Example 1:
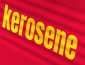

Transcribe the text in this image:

kerosene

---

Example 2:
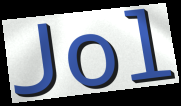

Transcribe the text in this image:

Jol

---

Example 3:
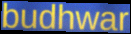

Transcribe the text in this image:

budhwar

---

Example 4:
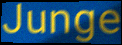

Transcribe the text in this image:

Junge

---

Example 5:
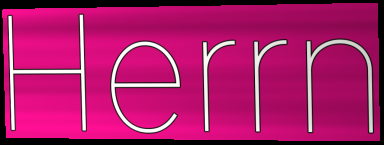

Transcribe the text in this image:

Herrn